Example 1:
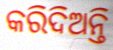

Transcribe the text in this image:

କରିଦିଅନ୍ତି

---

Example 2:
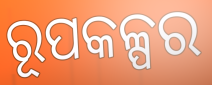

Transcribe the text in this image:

ରୂପକଳ୍ପର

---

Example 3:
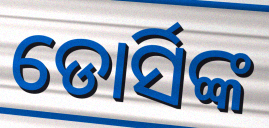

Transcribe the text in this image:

ଡୋର୍ସିଙ୍କ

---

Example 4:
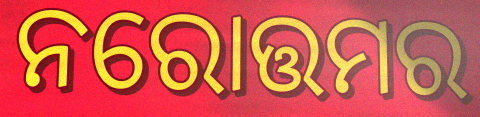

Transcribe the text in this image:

ନରୋତ୍ତମର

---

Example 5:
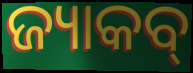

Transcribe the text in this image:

ଜ୍ୟାକବ୍